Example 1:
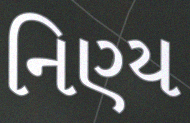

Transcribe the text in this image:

નિણ્ય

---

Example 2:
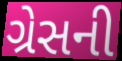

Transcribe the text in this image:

ગ્રેસની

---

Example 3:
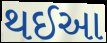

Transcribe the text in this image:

થઈઆ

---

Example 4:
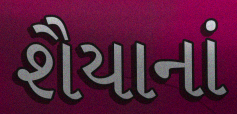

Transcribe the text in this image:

શૈયાનાં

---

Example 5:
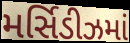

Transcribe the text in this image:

મર્સિડીઝમાં